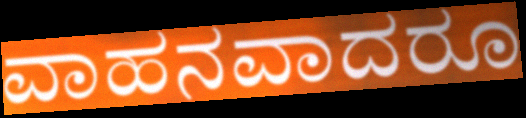
ವಾಹನವಾದರೂ